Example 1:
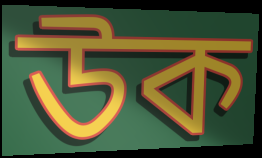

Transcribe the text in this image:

উক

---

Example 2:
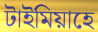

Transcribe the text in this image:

টাইমিয়াহে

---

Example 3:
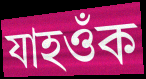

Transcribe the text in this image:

যাহওঁক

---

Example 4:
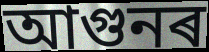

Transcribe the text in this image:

আগুনৰ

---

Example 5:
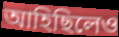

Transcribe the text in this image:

আহিছিলেও